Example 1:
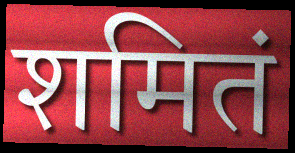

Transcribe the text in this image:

शमितं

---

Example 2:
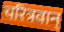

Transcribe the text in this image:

चरित्रवान्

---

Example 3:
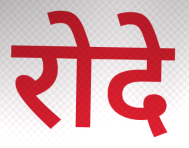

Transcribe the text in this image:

रोदे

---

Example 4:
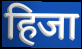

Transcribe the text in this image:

हिजा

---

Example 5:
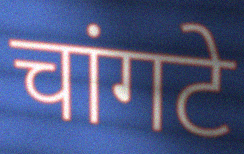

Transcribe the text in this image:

चांगटे